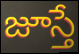
జూస్తే